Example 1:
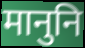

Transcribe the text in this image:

मानुनि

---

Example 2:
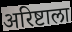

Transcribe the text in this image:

अरिष्टाला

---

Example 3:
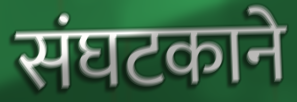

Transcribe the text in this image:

संघटकाने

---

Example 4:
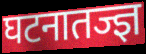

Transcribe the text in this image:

घटनातज्ज्ञ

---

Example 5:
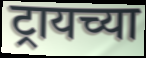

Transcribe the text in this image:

ट्रायच्या